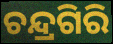
ଚନ୍ଦ୍ରଗିରି